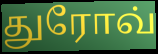
துரோவ்